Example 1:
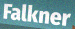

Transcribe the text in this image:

Falkner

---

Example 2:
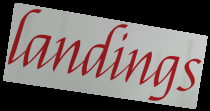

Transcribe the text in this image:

landings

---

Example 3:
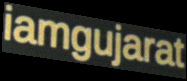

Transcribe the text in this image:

iamgujarat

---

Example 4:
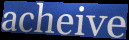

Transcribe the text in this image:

acheive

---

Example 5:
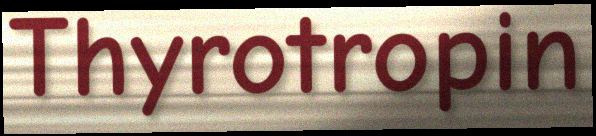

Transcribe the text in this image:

Thyrotropin